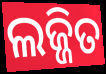
ଲଜ୍ଜିତ